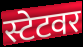
स्टेटवर